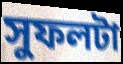
সুফলটা